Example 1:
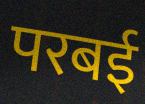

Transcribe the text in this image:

परबई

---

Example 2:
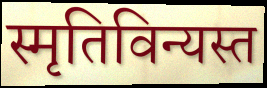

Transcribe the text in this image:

स्मृतिविन्यस्त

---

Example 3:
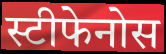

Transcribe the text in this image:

स्टीफेनोस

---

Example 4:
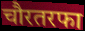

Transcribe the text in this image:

चौरतरफा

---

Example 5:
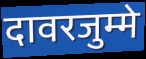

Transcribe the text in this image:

दावरजुम्मे